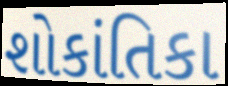
શોકાંતિકા